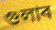
গুলাব